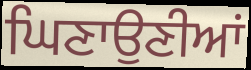
ਘਿਣਾਉਣੀਆਂ